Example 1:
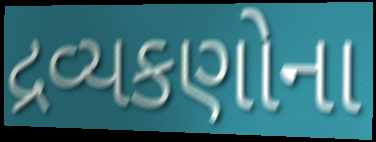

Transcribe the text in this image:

દ્રવ્યકણોના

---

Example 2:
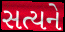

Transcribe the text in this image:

સત્યને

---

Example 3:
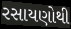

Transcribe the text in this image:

રસાયણોથી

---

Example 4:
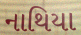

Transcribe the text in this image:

નાથિયા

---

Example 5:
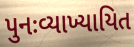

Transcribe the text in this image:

પુનઃવ્યાખ્યાયિત